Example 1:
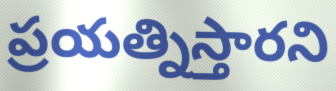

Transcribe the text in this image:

ప్రయత్నిస్తారని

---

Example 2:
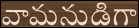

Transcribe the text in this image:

వామనుడిగా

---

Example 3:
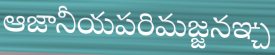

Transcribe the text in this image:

ఆజానీయపరిమజ్జనఞ్చ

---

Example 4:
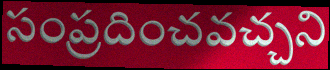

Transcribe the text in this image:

సంప్రదించవచ్చని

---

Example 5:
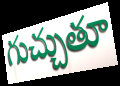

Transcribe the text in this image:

గుచ్చుతూ